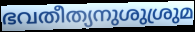
ഭവതീത്യനുശുശ്രുമ